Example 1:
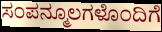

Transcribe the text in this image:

ಸಂಪನ್ಮೂಲಗಳೊಂದಿಗೆ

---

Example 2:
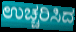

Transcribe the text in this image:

ಉಚ್ಚರಿಸಿದ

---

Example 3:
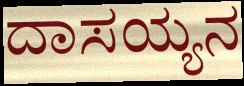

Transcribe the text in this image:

ದಾಸಯ್ಯನ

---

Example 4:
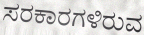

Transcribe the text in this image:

ಸರಕಾರಗಳಿರುವ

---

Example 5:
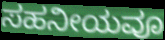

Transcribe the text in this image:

ಸಹನೀಯವೂ